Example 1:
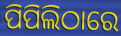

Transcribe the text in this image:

ପିପିଲିଠାରେ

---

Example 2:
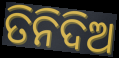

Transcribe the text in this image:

ତିନିଦିଅ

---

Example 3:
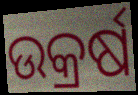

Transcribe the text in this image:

ଉକ୍ରର୍ଷ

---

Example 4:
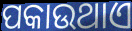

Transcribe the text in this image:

ପକାଉଥାଏ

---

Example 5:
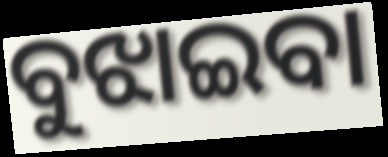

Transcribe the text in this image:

ବୁଝାଇବା